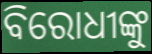
ବିରୋଧୀଙ୍କୁ